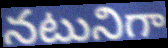
నటునిగా